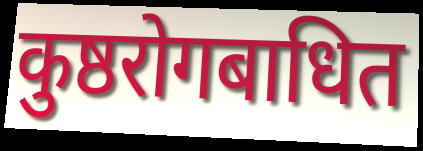
कुष्ठरोगबाधित